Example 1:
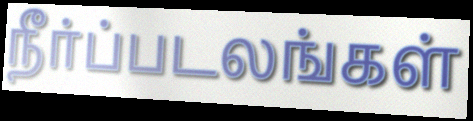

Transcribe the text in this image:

நீர்ப்படலங்கள்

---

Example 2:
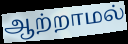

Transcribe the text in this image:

ஆற்றாமல்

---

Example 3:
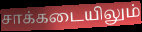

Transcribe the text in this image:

சாக்கடையிலும்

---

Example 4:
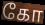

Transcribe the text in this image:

கோ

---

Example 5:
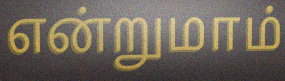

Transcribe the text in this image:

என்றுமாம்